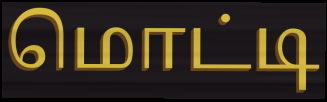
மொட்டி